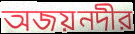
অজয়নদীর